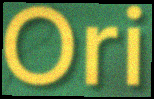
Ori